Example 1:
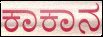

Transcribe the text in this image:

ಕಾಕಾನ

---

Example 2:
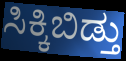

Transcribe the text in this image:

ಸಿಕ್ಕಿಬಿಡ್ತು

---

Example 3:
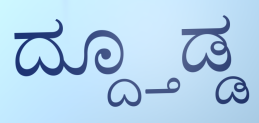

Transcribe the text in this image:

ದ್ದ್ತೂಡ್ಡ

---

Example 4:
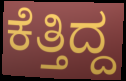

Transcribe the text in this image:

ಕೆತ್ತಿದ್ದ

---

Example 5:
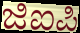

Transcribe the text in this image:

ಜಿಐಪಿ